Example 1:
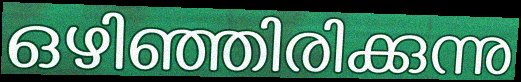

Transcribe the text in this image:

ഒഴിഞ്ഞിരിക്കുന്നു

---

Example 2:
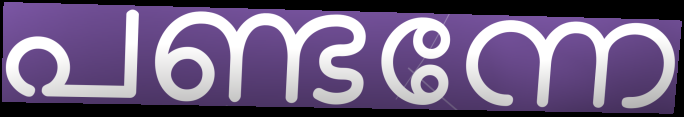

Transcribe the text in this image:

പണ്ടന്നേ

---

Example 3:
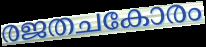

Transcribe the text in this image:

രജതചകോരം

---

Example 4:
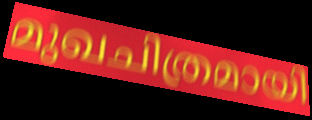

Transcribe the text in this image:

മുഖചിത്രമായി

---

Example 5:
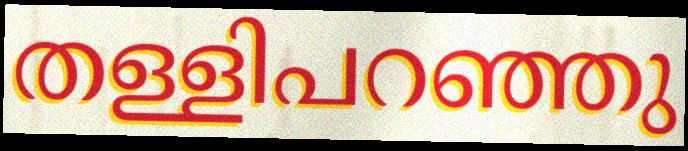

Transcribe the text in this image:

തള്ളിപറഞ്ഞു